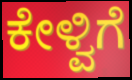
ಕೇಳ್ವಿಗೆ